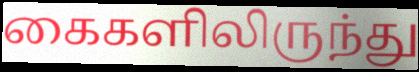
கைகளிலிருந்து